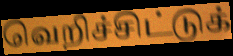
வெறிச்சிட்டுக்